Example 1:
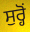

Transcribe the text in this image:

ਸੁਰ੍ਹੋਂ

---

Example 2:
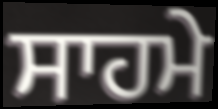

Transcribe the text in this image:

ਸਾਹਮੇ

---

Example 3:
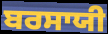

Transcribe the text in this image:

ਬਰਸਾਯੀ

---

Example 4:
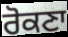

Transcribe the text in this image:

ਰੋਕਣਾ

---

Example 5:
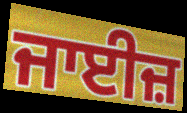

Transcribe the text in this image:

ਜਾਈਜ਼